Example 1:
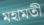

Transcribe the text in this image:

মহামতী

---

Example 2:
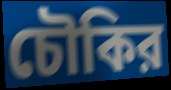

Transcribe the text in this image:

চৌকির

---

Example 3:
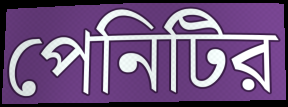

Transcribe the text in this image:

পেনিটির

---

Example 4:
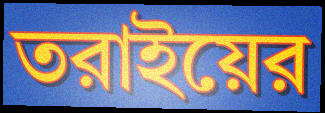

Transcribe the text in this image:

তরাইয়ের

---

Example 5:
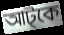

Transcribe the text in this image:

আট্‌কে